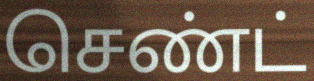
செண்ட்